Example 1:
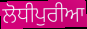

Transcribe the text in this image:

ਲੋਧੀਪੁਰੀਆ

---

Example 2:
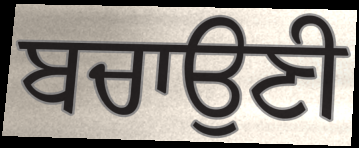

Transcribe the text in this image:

ਬਚਾਉਣੀ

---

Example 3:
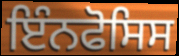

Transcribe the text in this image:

ਇੰਨਫੋਸਿਸ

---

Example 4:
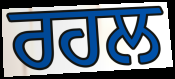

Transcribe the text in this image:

ਰਹਲ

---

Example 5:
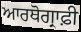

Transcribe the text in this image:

ਆਰਥੋਗ੍ਰਾਫ਼ੀ